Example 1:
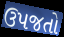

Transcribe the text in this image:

ઉપજતો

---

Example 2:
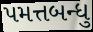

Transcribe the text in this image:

પમત્તબન્ધુ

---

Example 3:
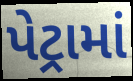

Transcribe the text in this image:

પેટ્રામાં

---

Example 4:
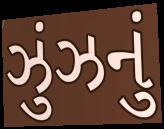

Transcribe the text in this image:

ઝુંઝનું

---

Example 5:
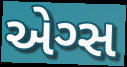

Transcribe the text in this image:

એગ્સ